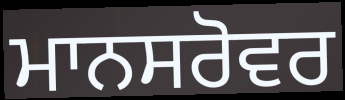
ਮਾਨਸਰੋਵਰ